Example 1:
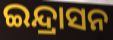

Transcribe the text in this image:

ଇନ୍ଦ୍ରାସନ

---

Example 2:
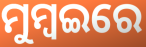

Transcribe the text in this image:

ମୁମ୍ବଇରେ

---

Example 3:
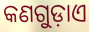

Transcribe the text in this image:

କଣଗୁଡ଼ାଏ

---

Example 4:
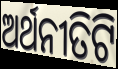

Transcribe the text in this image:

ଅର୍ଥନୀତିଟି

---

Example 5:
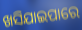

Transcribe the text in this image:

ଖସିଯାଇପାରେ